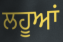
ਲਹੂਆਂ